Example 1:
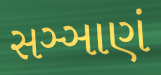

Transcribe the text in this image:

સઞ્ઞાણં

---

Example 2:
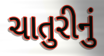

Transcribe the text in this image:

ચાતુરીનું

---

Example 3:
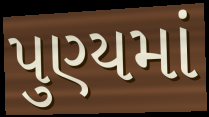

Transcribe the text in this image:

પુણ્યમાં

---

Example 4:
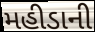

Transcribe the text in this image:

મહીડાની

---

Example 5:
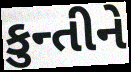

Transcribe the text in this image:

કુન્તીને